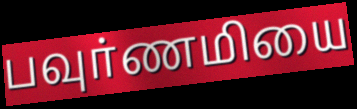
பவுர்ணமியை